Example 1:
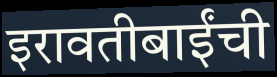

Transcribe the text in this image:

इरावतीबाईंची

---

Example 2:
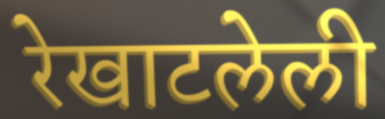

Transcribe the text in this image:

रेखाटलेली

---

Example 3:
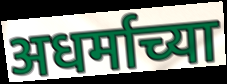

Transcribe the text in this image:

अधर्माच्या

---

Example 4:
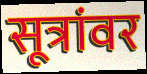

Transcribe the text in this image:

सूत्रांवर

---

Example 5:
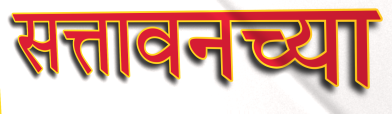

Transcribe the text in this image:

सत्तावनच्या